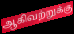
ஆகிவற்றுக்கு